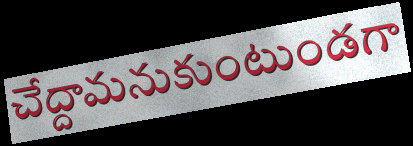
చేద్దామనుకుంటుండగా